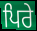
ਪਿਰੇ